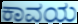
ಕಾವಯ